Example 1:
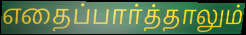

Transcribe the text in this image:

எதைப்பார்த்தாலும்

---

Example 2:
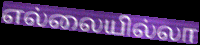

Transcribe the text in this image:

எல்லையில்லா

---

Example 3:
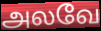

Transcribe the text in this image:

அலவே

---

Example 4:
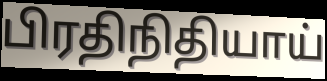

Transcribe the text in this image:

பிரதிநிதியாய்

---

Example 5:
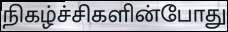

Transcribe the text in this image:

நிகழ்ச்சிகளின்போது